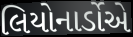
લિયોનાર્ડોએ